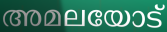
അമലയോട്